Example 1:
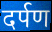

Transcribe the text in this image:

दर्पण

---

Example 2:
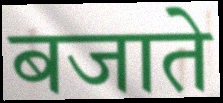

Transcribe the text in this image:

बजाते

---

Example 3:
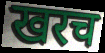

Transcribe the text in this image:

खरच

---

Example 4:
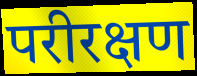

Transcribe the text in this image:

परीरक्षण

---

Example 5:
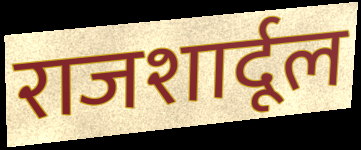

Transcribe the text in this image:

राजशार्दूल